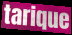
tarique